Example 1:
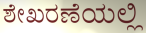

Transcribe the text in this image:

ಶೇಖರಣೆಯಲ್ಲಿ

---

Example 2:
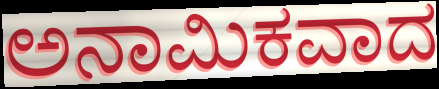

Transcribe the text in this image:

ಅನಾಮಿಕವಾದ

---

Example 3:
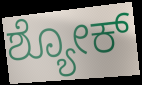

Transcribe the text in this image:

ಶ್ಯೋಕ್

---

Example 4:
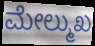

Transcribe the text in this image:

ಮೇಲ್ಮುಖ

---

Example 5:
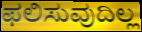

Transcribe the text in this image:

ಫಲಿಸುವುದಿಲ್ಲ